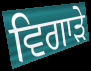
ਵਿਗਾੜੇ